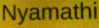
Nyamathi